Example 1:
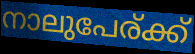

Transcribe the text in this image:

നാലുപേര്ക്ക്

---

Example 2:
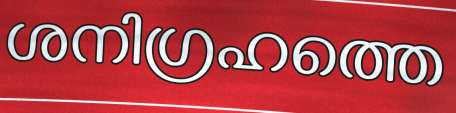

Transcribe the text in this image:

ശനിഗ്രഹത്തെ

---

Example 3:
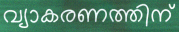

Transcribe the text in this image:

വ്യാകരണത്തിന്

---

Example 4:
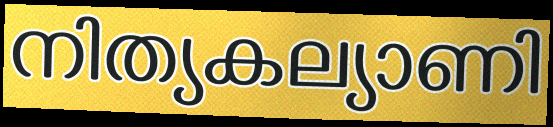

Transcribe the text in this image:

നിത്യകല്യാണി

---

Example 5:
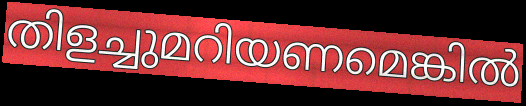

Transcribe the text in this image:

തിളച്ചുമറിയണമെങ്കിൽ